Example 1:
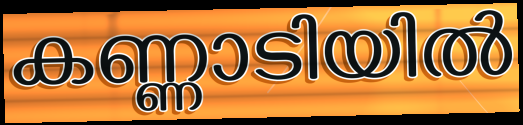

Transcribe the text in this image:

കണ്ണാടിയിൽ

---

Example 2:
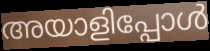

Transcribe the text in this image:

അയാളിപ്പോൾ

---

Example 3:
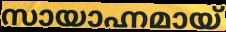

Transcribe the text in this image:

സായാഹ്നമായ്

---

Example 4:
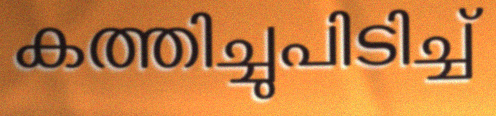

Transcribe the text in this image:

കത്തിച്ചുപിടിച്ച്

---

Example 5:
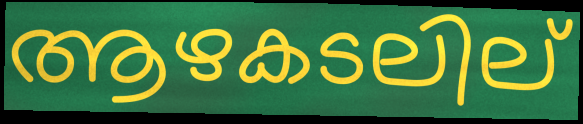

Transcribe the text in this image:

ആഴകടലില്